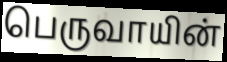
பெருவாயின்